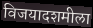
विजयादशमीला